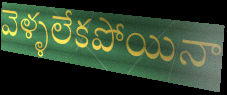
వెళ్ళలేకపోయినా